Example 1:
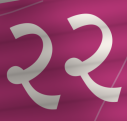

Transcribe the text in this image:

રર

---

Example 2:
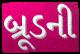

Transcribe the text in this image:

બ્રૂડની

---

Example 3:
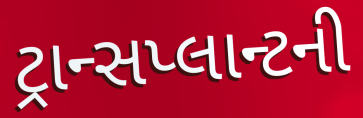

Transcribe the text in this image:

ટ્રાન્સપ્લાન્ટની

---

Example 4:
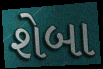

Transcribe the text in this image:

શેબા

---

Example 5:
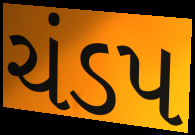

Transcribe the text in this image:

ચંડપ